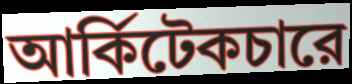
আর্কিটেকচারে